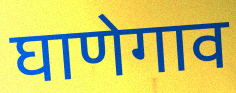
घाणेगाव